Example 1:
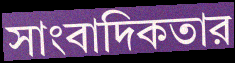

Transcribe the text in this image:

সাংবাদিকতার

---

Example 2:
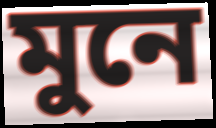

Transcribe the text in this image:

মুনে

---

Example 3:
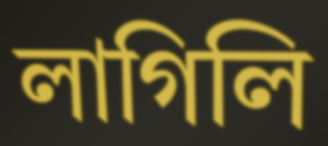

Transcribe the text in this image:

লাগিলি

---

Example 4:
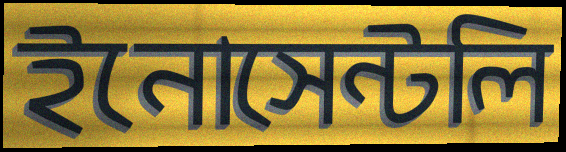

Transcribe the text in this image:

ইনোসেন্টলি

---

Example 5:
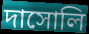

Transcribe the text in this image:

দাসোলি